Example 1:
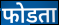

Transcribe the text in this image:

फोडता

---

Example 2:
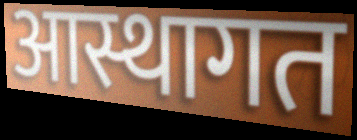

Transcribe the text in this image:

आस्थागत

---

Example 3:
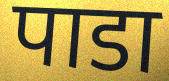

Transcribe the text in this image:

पाडा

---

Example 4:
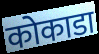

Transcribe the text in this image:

कोकाडा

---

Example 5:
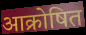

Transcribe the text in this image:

आक्रोषित